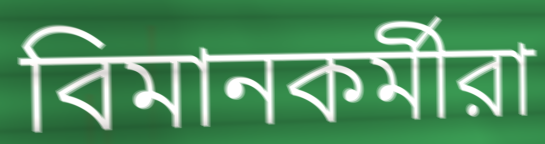
বিমানকর্মীরা